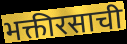
भक्तीरसाची